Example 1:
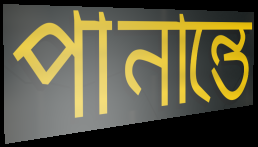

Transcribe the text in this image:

পানান্তে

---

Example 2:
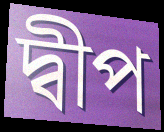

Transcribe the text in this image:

দ্বীপ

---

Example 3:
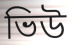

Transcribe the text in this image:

ভিউ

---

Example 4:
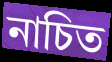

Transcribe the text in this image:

নাচিত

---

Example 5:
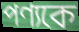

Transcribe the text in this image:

পণ্যকে